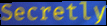
Secretly